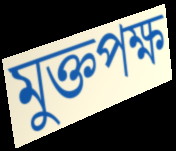
মুক্তপক্ষ